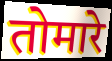
तोमारे